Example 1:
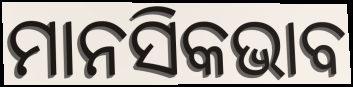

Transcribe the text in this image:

ମାନସିକଭାବ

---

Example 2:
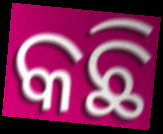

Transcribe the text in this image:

କଛି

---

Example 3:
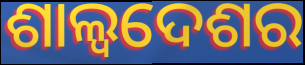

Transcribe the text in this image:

ଶାଲ୍ୱଦେଶର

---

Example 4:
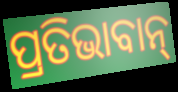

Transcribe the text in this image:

ପ୍ରତିଭାବାନ୍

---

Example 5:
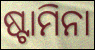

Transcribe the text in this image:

ଷ୍ଟାମିନା